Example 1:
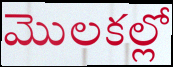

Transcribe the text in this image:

మొలకల్లో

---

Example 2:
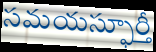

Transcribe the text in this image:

సమయస్ఫూర్తీ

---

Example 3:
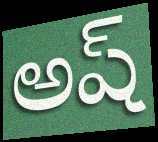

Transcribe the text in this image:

అష్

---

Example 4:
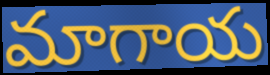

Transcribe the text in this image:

మాగాయ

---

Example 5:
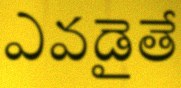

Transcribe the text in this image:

ఎవడైతే